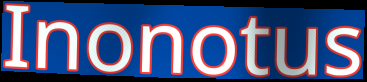
Inonotus